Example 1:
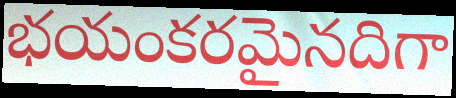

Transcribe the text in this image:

భయంకరమైనదిగా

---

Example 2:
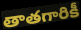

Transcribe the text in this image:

తాతగారికీ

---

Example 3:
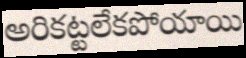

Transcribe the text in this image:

అరికట్టలేకపోయాయి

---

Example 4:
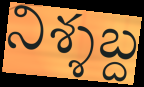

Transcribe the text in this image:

నిశ్శబ్ద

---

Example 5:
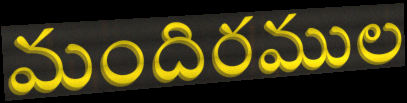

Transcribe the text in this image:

మందిరముల